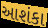
આશંકા